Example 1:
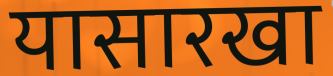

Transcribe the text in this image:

यासारखा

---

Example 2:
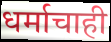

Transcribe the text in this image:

धर्माचाही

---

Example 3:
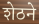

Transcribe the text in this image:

शेठने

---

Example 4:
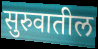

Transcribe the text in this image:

सुरुवातील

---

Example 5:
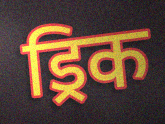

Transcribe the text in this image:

ड्रिक